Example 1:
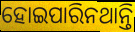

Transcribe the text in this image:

ହୋଇପାରିନଥାନ୍ତି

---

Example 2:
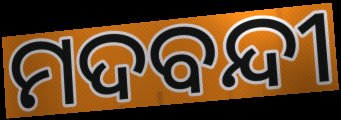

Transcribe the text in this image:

ମଦବନ୍ଦୀ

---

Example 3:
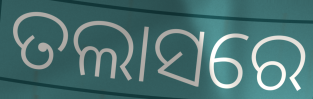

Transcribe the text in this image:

ତଲାସରେ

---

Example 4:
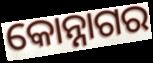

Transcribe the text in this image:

କୋନ୍ନାଗର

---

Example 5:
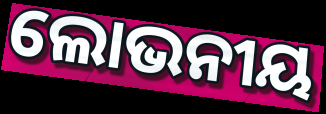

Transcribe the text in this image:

ଲୋଭନୀୟ